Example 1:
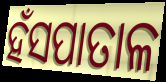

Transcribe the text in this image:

ହଁସପାତାଳ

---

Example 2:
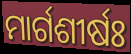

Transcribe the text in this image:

ମାର୍ଗଶୀର୍ଷଃ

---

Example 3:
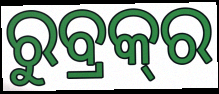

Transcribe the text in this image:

ରୁବ୍ରକ୍‍ର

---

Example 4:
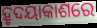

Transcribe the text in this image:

ହୃଦୟାକାଶରେ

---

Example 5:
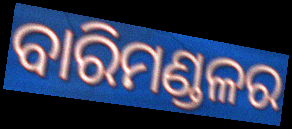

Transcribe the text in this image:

ବାରିମଣ୍ଡଳର